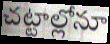
చట్టాల్లోనూ